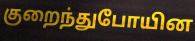
குறைந்துபோயின